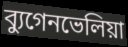
ব্যুগেনভেলিয়া